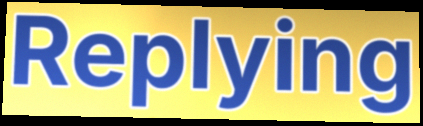
Replying